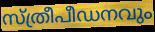
സ്ത്രീപീഡനവും